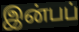
இன்பப்